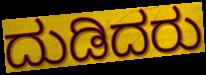
ದುಡಿದರು